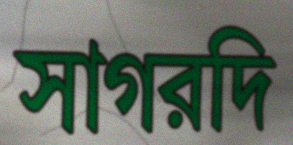
সাগরদি